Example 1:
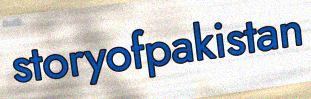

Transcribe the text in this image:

storyofpakistan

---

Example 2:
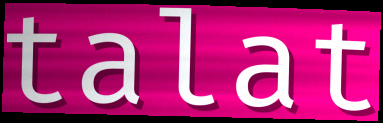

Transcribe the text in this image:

talat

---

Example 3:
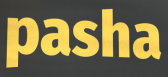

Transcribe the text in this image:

pasha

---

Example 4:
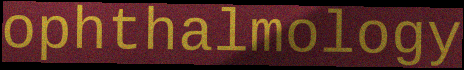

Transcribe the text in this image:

ophthalmology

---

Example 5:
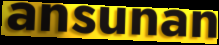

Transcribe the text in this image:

ansunan